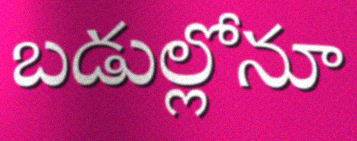
బడుల్లోనూ